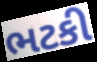
ભટકી